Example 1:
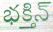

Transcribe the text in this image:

భక్తిన్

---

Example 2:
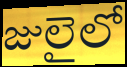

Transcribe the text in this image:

జులైలో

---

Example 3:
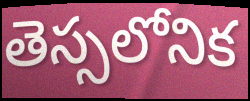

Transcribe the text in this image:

తెస్సలోనిక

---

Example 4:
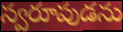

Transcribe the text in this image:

స్వరూపుడను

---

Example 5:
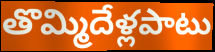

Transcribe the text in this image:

తొమ్మిదేళ్లపాటు